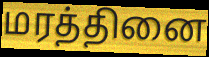
மரத்தினை